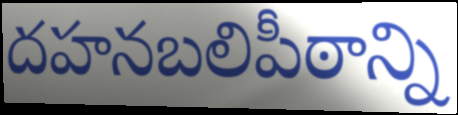
దహనబలిపీఠాన్ని